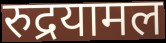
रुद्रयामल